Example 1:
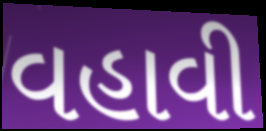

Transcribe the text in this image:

વહાવી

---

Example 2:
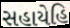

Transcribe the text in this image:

સહાયેહિ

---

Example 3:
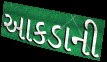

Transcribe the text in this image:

આકડાની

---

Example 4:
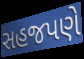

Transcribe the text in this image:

સહજપણે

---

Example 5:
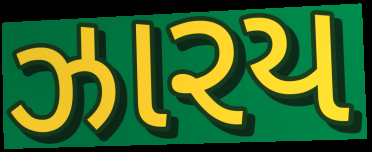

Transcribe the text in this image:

ઝારય